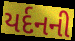
યર્દનની